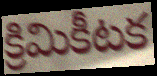
క్రిమికీటక